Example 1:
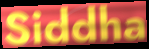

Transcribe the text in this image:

Siddha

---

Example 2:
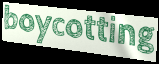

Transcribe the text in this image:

boycotting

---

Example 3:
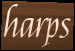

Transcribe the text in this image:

harps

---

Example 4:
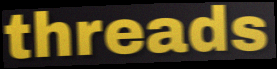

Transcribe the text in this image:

threads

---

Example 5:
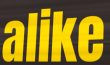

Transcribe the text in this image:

alike